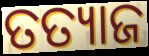
ତତ୍ୟାଜ